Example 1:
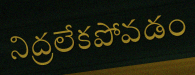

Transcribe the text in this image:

నిద్రలేకపోవడం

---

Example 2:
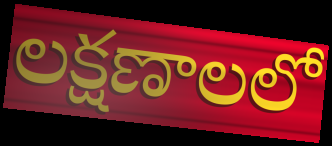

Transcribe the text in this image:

లక్షణాలలో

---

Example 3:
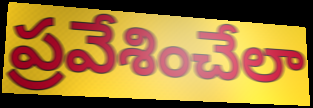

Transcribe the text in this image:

ప్రవేశించేలా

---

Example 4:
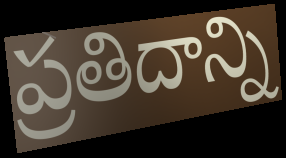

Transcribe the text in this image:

ప్రతిదాన్ని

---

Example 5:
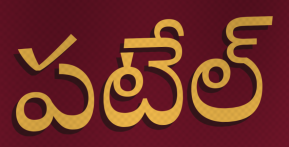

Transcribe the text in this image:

పటేల్